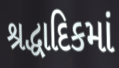
શ્રદ્ધાદિકમાં